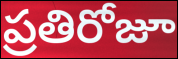
ప్రతిరోజూ